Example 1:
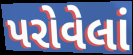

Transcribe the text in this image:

પરોવેલાં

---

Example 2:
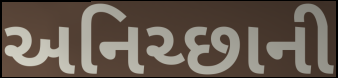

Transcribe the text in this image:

અનિચ્છાની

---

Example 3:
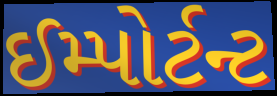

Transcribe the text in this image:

ઈમ્પોર્ટન્ટ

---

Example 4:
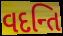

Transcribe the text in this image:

વદન્તિ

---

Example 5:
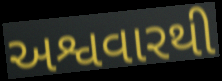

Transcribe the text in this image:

અશ્વવારથી